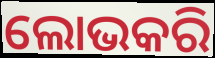
ଲୋଭକରି